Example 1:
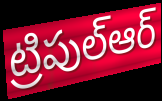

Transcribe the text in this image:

ట్రిపుల్ఆర్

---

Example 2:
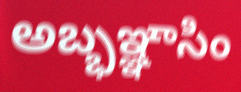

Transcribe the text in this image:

అబ్భఞ్ఞాసిం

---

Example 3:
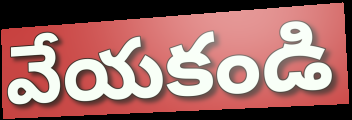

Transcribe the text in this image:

వేయకండి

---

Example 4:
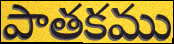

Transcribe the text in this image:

పాతకము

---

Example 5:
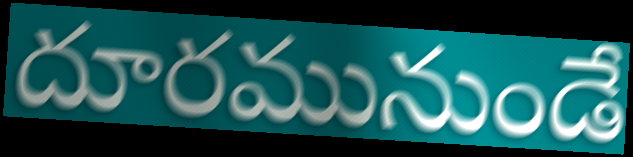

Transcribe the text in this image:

దూరమునుండే